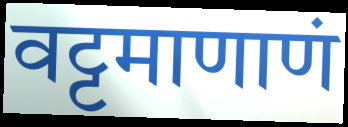
वट्टमाणाणं